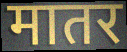
मातर